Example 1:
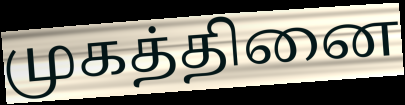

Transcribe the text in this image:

முகத்தினை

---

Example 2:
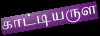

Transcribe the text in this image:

காட்டியருள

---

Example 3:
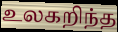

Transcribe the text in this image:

உலகறிந்த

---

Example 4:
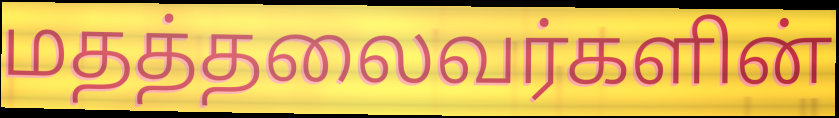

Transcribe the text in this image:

மதத்தலைவர்களின்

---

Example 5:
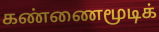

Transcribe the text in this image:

கண்ணைமூடிக்